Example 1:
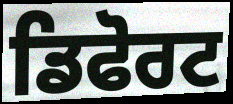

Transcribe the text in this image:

ਡਿਫੋਰਟ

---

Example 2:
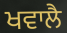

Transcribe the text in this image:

ਖਵਾਲੈ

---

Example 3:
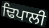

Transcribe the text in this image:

ਢਿਪਾਲੀ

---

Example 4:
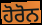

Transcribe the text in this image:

ਹੋਰੋਨ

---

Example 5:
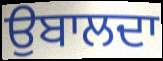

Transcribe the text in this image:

ਉਬਾਲਦਾ